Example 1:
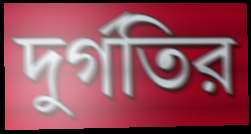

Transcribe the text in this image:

দুর্গতির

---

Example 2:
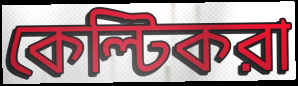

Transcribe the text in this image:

কেল্টিকরা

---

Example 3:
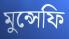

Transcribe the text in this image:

মুন্সেফি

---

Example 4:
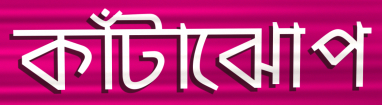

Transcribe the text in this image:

কাঁটাঝোপ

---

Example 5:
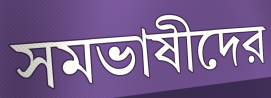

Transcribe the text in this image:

সমভাষীদের